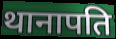
थानापति